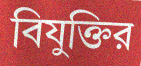
বিযুক্তির